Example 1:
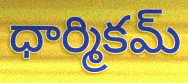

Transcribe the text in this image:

ధార్మికమ్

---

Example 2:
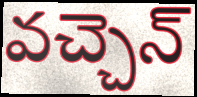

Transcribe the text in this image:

వచ్చెన్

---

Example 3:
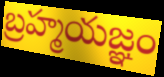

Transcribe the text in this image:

బ్రహ్మయజ్ఞం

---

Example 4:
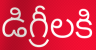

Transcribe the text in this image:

డిగ్రీలకి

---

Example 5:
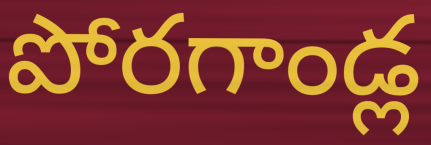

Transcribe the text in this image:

పోరగాండ్ల